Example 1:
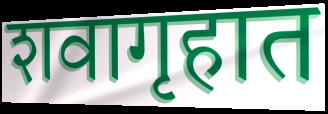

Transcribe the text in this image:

शवागृहात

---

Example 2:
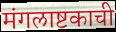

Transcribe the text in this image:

मंगलाष्टकाची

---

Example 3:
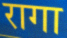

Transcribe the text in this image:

रागा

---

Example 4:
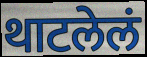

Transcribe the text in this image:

थाटलेलं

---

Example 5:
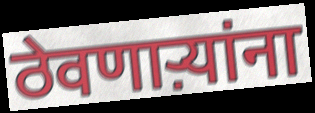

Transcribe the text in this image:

ठेवणाऱ्‍यांना